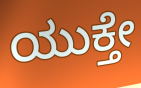
ಯುಕ್ತೇ